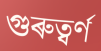
গুৰুত্ৱৰ্ণ